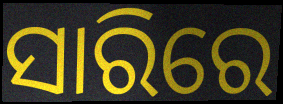
ସାରିରେ